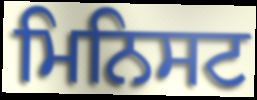
ਮਿਨਿਸਟ